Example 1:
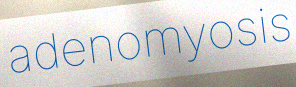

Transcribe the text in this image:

adenomyosis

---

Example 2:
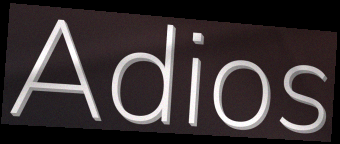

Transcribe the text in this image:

Adios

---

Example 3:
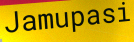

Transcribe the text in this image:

Jamupasi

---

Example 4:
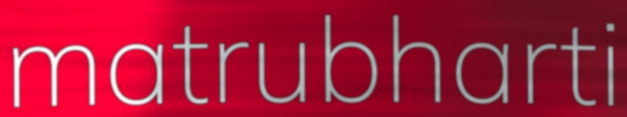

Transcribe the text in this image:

matrubharti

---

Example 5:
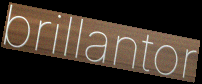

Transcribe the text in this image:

brillantor